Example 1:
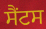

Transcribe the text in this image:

ਸੈਂਟਸ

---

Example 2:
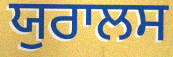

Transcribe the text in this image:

ਯੁਰਾਲਸ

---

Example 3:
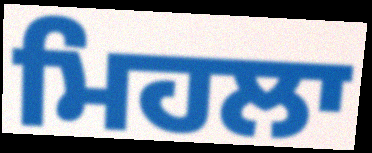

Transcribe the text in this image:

ਮਿਹਲਾ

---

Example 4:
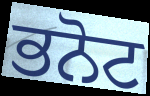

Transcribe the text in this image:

ਭਨੋਟ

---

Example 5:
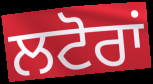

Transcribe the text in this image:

ਲਟੋਰਾਂ